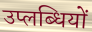
उप्लब्धियों